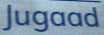
Jugaad